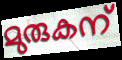
മുരുകന്